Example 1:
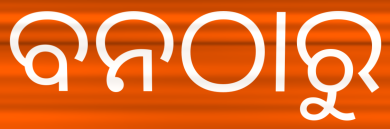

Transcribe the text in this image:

ବନଠାରୁ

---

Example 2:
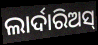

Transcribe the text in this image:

ଲାର୍ଦାରିଅସ୍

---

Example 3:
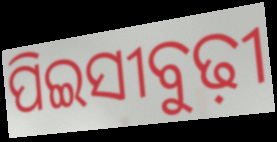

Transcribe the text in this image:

ପିଇସୀବୁଢ଼ୀ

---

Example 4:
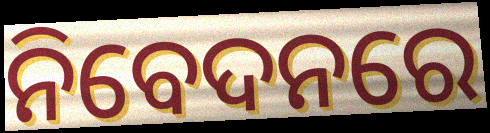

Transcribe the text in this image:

ନିବେଦନରେ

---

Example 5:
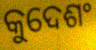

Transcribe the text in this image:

କୁଦେଶଂ